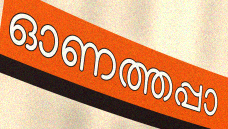
ഓണത്തപ്പാ